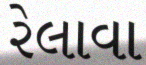
રેલાવા